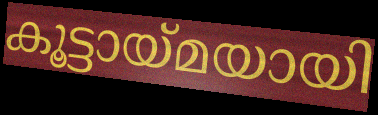
കൂട്ടായ്മയായി